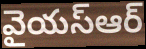
వైయస్ఆర్